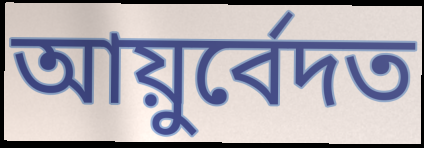
আয়ুৰ্বেদত